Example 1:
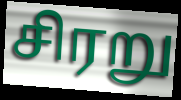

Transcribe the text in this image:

சிரறு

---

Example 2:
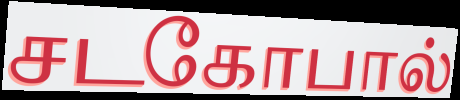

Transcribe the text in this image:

சடகோபால்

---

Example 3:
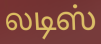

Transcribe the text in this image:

லடிஸ்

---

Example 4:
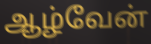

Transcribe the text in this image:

ஆழ்வேன்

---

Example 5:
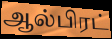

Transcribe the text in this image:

ஆல்பிரட்